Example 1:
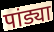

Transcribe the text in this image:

पांड्या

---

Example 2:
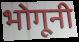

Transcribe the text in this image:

भोगूनी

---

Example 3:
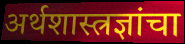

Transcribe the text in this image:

अर्थशास्त्रज्ञांचा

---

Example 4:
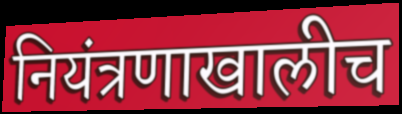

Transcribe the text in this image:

नियंत्रणाखालीच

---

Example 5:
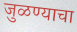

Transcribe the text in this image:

जुळण्याचा